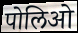
पोलिओ